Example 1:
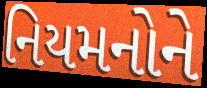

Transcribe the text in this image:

નિયમનોને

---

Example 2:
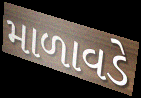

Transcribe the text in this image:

માળાવડે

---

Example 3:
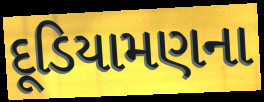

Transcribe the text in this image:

દૂડિયામણના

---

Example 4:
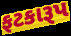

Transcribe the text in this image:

ફટકારૂપ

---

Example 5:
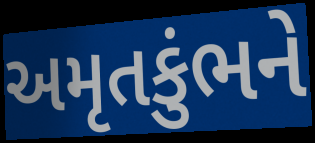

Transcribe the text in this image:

અમૃતકુંભને